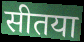
सीतया